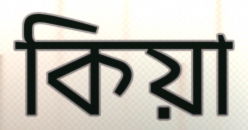
কিয়া